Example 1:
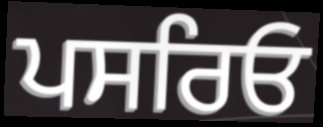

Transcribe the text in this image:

ਪਸਰਿਓ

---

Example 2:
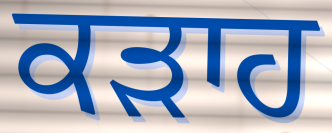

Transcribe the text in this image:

ਕੜਾਹ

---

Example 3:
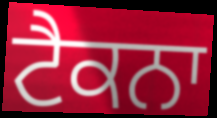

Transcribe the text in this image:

ਟੈਕਨਾ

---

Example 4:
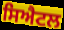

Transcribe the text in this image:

ਸਿਐਟਲ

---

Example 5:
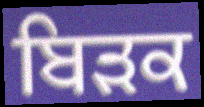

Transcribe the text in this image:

ਬਿੜਕ